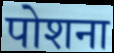
पोशना